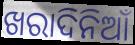
ଖରାଦିନିଆଁ